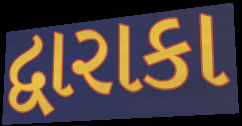
દ્વારાકા